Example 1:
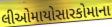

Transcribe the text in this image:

લીઓમાયોસારકોમાના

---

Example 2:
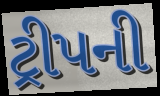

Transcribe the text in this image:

ટ્રીપની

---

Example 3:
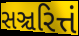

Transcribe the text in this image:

સઞ્ચરિત્તં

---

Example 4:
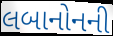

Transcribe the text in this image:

લબાનોનની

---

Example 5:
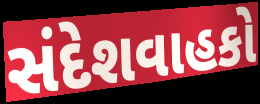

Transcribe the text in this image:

સંદેશવાહકો